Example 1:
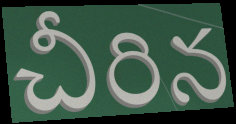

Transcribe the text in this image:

చీరిన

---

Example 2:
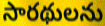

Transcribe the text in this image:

సారథులను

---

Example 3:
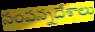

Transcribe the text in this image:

సంపన్నదేశాలు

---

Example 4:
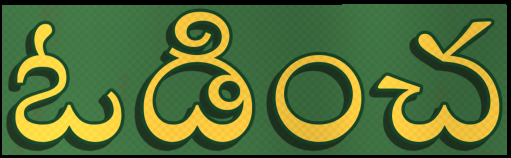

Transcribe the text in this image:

ఓడించ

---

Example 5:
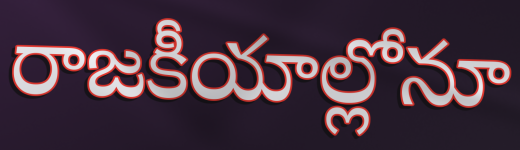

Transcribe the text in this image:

రాజకీయాల్లోనూ